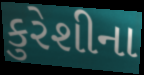
કુરેશીના